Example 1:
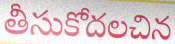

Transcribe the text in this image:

తీసుకోదలచిన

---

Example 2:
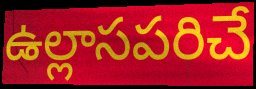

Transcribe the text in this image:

ఉల్లాసపరిచే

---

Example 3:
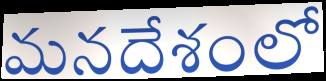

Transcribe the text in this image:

మనదేశంలో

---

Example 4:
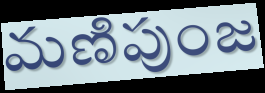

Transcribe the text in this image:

మణిపుంజ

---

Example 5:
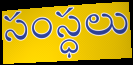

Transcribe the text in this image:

సంస్ధలు